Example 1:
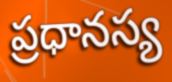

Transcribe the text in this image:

ప్రధానస్య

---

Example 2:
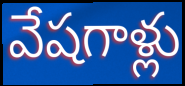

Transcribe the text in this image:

వేషగాళ్లు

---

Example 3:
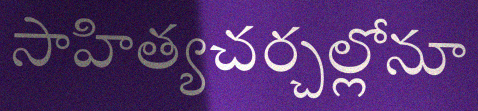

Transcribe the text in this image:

సాహిత్యచర్చల్లోనూ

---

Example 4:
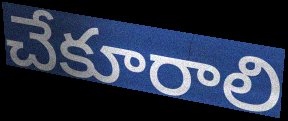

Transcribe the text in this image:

చేకూరాలి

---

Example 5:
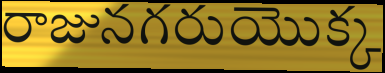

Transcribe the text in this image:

రాజునగరుయొక్క